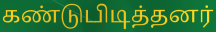
கண்டுபிடித்தனர்